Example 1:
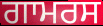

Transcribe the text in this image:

ਗਾਮਰਸ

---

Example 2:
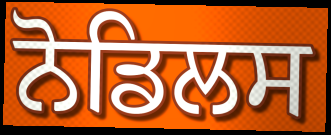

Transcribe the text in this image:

ਨੋਡਿਲਸ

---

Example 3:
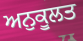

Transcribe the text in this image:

ਅਨੁਕੂਲਤ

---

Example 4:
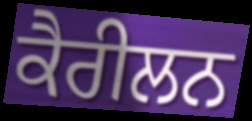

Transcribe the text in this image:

ਕੈਰੀਲਨ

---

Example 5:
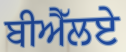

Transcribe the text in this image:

ਬੀਐੱਲਏ